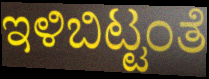
ಇಳಿಬಿಟ್ಟಂತೆ